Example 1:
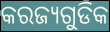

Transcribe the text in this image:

କରଜ୍ୟଗୁଡିକ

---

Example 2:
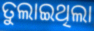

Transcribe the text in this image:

ତୁଲାଇଥିଲା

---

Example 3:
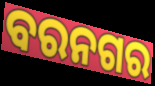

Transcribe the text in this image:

ବରନଗର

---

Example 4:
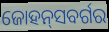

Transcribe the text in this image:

ଜୋହନ୍‌ସବର୍ଗର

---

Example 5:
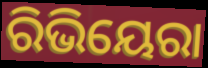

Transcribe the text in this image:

ରିଭିୟେରା